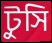
টুসি